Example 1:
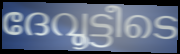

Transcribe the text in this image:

ദേവൂട്ടീടെ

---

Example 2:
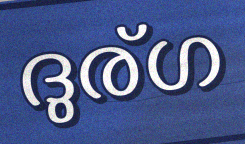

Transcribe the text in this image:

ദുര്ഗ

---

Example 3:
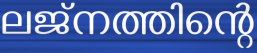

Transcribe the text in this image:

ലജ്നത്തിന്റെ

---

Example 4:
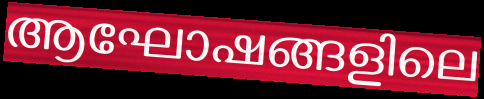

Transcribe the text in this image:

ആഘോഷങ്ങളിലെ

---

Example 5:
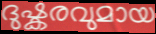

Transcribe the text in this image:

ദുഷ്കരവുമായ